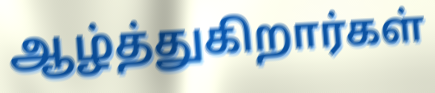
ஆழ்த்துகிறார்கள்